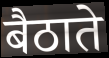
बैठाते